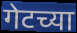
गेटच्या